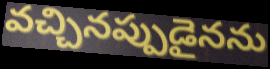
వచ్చినప్పుడైనను